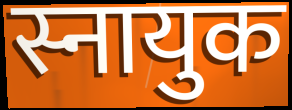
स्नायुक